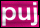
puj